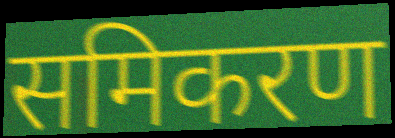
समिकरण